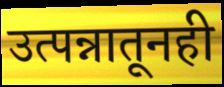
उत्पन्नातूनही